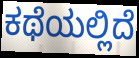
ಕಥೆಯಲ್ಲಿದೆ